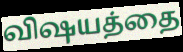
விஷயத்தை